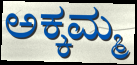
ಅಕ್ಕಮ್ಮ